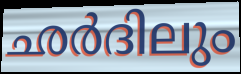
ഛർദിലും